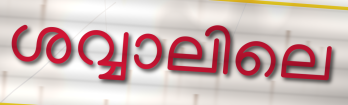
ശവ്വാലിലെ